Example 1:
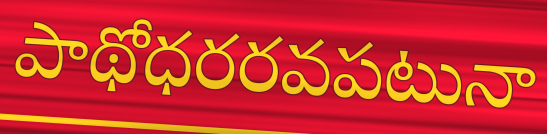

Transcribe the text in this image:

పాథోధరరవపటునా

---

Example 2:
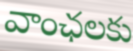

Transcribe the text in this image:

వాంఛలకు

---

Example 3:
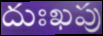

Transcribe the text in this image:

దుఃఖపు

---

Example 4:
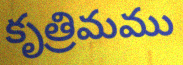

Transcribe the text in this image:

కృత్రిమము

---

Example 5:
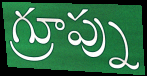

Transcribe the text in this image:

గ్రూప్ను